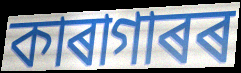
কাৰাগাৰৰ